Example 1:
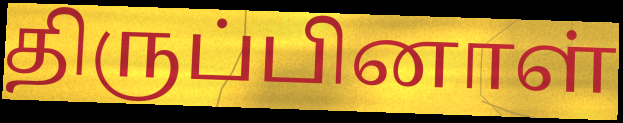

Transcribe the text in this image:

திருப்பினாள்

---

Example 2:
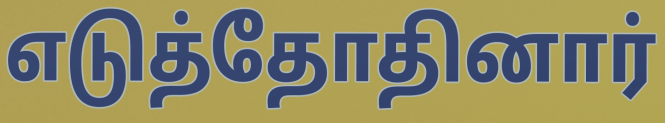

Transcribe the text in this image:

எடுத்தோதினார்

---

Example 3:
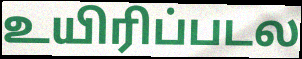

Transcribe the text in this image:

உயிரிப்படல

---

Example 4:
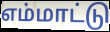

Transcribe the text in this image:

எம்மாட்டு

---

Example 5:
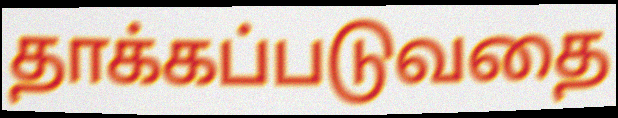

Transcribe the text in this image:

தாக்கப்படுவதை